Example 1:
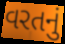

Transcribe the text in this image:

વરતનું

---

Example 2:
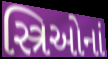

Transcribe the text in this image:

સ્ત્રિઓનાં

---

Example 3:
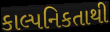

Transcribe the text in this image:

કાલ્પનિકતાથી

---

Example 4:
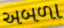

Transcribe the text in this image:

અબળા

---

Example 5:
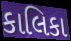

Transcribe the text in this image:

કાલિકા